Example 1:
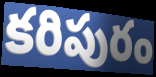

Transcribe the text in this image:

కరిపురం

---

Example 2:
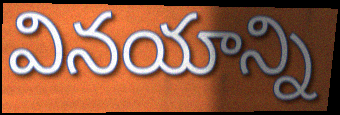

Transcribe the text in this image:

వినయాన్ని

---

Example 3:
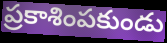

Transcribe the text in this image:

ప్రకాశింపకుండు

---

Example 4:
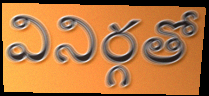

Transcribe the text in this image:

వినిర్గతో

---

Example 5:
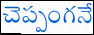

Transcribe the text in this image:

చెప్పంగనే